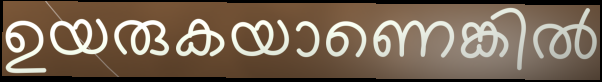
ഉയരുകയാണെങ്കിൽ